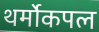
थर्मोकपल